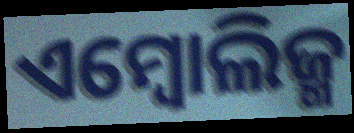
ଏମ୍ବୋଲିଜ୍ମ